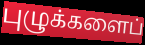
புழுக்களைப்